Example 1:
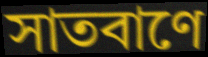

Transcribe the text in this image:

সাতবাণে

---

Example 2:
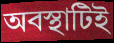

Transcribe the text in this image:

অবস্থাটিই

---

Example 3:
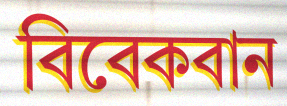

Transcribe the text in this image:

বিবেকবান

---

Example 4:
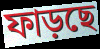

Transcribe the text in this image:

ফাড়ছে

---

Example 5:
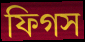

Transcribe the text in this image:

ফিগস